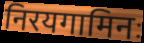
निरयगामिनः